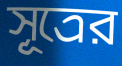
সূত্রের